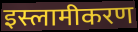
इस्लामीकरण